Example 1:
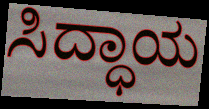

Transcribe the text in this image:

ಸಿದ್ಧಾಯ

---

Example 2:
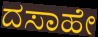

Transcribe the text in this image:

ದಸಾಹೇ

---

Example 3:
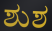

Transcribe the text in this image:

ಶುಶ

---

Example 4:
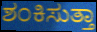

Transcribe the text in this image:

ಶಂಕಿಸುತ್ತಾ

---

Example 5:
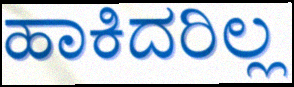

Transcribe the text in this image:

ಹಾಕಿದರಿಲ್ಲ